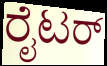
ರೈಟರ್